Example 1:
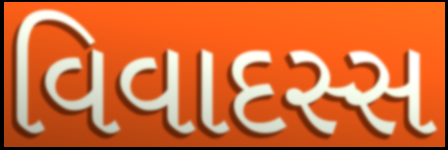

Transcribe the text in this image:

વિવાદસ્સ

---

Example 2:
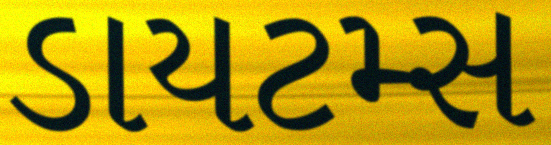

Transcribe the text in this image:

ડાયટમ્સ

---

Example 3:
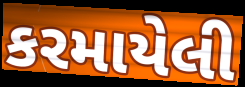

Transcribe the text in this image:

કરમાયેલી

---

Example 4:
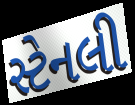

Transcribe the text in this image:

સ્ટેનલી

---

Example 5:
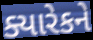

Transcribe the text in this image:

ક્યારેકને